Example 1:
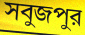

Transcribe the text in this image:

সবুজপুর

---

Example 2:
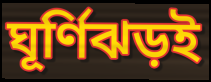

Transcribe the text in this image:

ঘূর্ণিঝড়ই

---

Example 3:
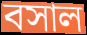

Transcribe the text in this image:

বসাল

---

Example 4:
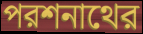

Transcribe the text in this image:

পরশনাথের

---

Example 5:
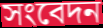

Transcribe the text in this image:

সংবেদন